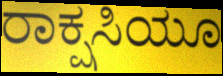
ರಾಕ್ಷಸಿಯೂ